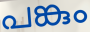
പങ്കും